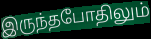
இருந்தபோதிலும்